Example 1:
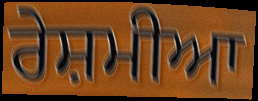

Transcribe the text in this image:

ਰੇਸ਼ਮੀਆ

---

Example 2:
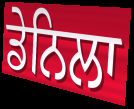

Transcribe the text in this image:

ਡੇਨਿਲਾ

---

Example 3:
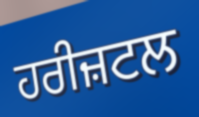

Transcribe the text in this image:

ਹਰੀਜ਼ਟਲ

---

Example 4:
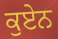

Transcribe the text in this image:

ਕੁਏਨ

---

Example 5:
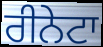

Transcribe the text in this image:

ਰੀਨੇਟਾ